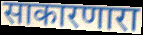
साकारणारा